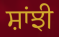
ਸ਼ਾਂਝੀ